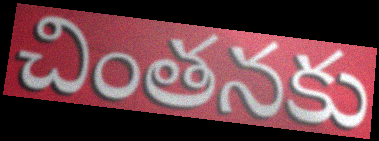
చింతనకు